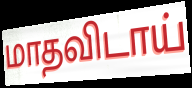
மாதவிடாய்